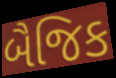
બૈજિક